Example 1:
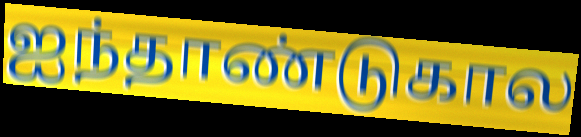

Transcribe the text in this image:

ஐந்தாண்டுகால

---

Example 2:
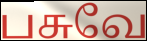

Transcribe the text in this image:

பசுவே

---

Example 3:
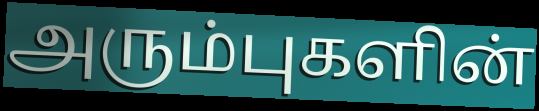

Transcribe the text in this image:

அரும்புகளின்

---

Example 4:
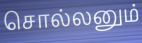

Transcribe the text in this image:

சொல்லனும்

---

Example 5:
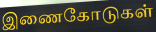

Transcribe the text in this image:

இணைகோடுகள்